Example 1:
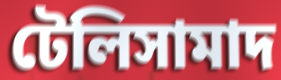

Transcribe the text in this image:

টেলিসামাদ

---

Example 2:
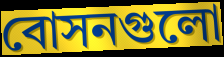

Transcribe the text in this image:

বোসনগুলো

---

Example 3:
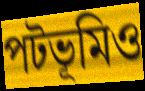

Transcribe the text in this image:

পটভূমিও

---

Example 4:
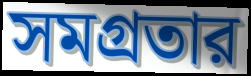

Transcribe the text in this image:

সমগ্রতার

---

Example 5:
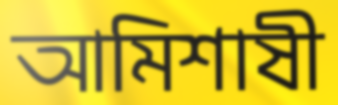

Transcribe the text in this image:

আমিশাষী